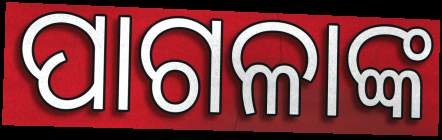
ପାଗଳାଙ୍କ